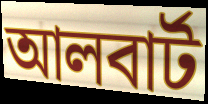
আলবার্ট